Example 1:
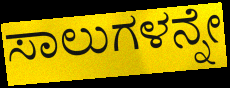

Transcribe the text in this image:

ಸಾಲುಗಳನ್ನೇ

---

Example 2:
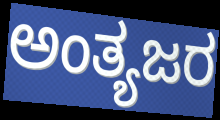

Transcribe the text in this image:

ಅಂತ್ಯಜರ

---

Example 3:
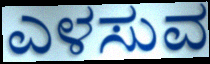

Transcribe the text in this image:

ಎಳಸುವ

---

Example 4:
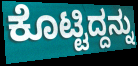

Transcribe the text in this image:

ಕೊಟ್ಟಿದ್ದನ್ನು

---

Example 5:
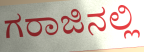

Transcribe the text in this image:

ಗರಾಜಿನಲ್ಲಿ